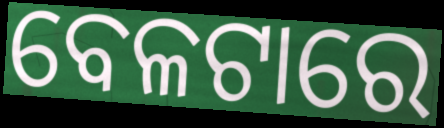
ବେଳଟାରେ